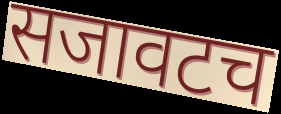
सजावटच